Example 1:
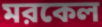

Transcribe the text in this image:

মরকেল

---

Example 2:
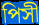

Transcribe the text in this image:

পিসী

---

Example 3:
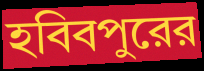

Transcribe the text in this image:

হবিবপুরের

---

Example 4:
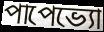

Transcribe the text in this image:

পাপেভ্যো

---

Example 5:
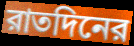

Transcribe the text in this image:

রাতদিনের